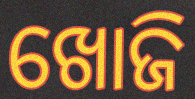
ଖୋଜି